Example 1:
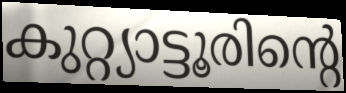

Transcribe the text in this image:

കുറ്റ്യാട്ടൂരിന്റെ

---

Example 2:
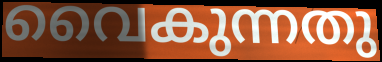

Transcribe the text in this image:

വൈകുന്നതു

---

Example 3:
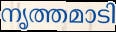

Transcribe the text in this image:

നൃത്തമാടി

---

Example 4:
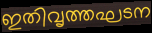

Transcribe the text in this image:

ഇതിവൃത്തഘടന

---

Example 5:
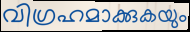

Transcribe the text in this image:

വിഗ്രഹമാക്കുകയും